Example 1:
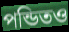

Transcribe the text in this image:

পন্ডিতও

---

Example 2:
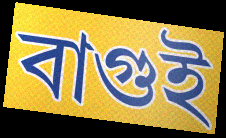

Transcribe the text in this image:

বাগুই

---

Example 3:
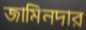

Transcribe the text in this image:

জামিনদার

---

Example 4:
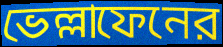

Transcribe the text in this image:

ভেল্লাফেনের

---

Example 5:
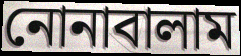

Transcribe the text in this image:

নোনাবালাম